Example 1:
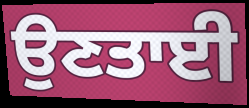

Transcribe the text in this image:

ਉਣਤਾਈ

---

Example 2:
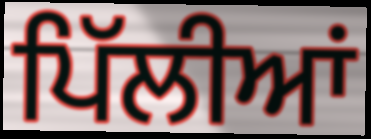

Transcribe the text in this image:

ਪਿੱਲੀਆਂ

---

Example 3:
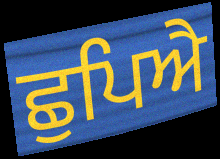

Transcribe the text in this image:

ਛੁਪਿਐ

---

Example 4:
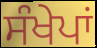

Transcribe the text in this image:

ਸੰਖੇਪਾਂ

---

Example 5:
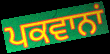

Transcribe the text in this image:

ਪਕਵਾਨਾਂ